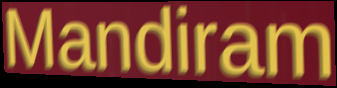
Mandiram